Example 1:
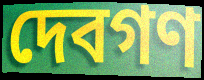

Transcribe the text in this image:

দেবগণ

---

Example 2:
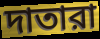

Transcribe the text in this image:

দাতারা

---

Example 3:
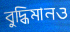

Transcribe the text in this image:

বুদ্ধিমানও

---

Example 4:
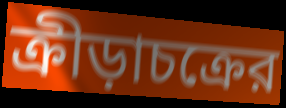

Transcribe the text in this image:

ক্রীড়াচক্রের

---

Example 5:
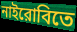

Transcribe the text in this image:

নাইরোবিতে